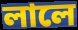
লালে